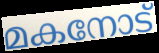
മകനോട്